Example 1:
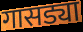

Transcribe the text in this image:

गासड्या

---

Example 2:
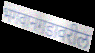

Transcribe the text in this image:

भगवानगडावरील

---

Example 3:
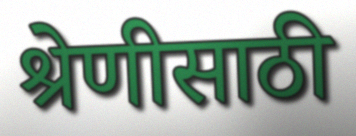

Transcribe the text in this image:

श्रेणीसाठी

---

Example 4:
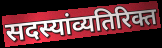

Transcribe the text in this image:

सदस्यांव्यतिरिक्त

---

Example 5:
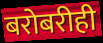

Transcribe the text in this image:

बरोबरीही